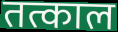
तत्‍काल